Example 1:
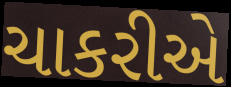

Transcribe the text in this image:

ચાકરીએ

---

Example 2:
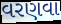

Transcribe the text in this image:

વરણવા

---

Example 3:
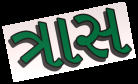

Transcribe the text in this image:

ત્રાસ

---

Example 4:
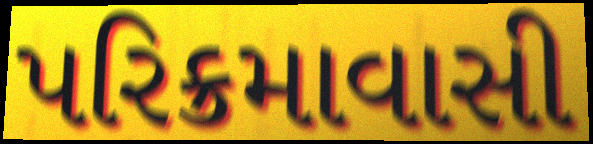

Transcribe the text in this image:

પરિક્રમાવાસી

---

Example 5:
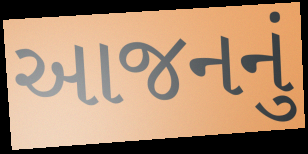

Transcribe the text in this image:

આજનનું